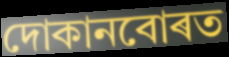
দোকানবোৰত